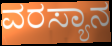
ವರಸ್ಯಾನ